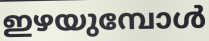
ഇഴയുമ്പോൾ